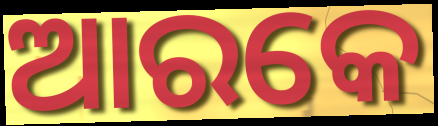
ଆରକେ